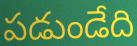
పడుండేది